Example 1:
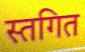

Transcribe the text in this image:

स्तगित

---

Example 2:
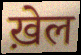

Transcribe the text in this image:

ख़ेल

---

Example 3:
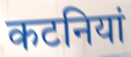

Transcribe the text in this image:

कटनियां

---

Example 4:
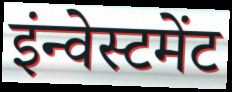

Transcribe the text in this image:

इंन्वेस्टमेंट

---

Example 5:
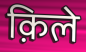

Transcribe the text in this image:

क़िले